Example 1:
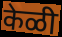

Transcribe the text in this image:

केळी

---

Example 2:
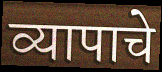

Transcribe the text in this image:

व्यापाचे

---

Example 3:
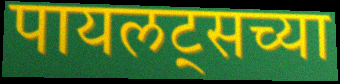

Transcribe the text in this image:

पायलट्सच्या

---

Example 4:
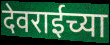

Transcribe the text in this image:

देवराईच्या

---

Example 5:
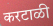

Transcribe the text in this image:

करटाळी